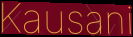
Kausani